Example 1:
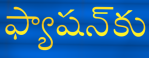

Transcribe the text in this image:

ఫ్యాషన్‌కు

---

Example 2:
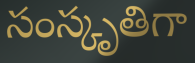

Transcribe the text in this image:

సంస్కృతిగా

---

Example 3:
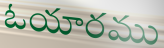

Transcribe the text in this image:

ఓయారము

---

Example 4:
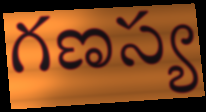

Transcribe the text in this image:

గణస్య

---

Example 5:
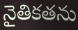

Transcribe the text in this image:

నైతికతను